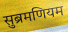
सुब्रमणियम